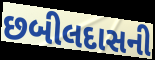
છબીલદાસની